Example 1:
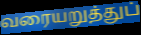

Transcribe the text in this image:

வரையறுத்துப்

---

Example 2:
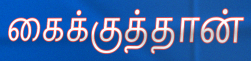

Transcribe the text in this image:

கைக்குத்தான்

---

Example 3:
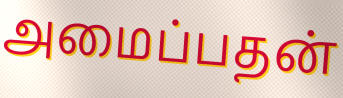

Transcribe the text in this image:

அமைப்பதன்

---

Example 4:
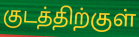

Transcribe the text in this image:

குடத்திற்குள்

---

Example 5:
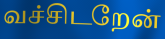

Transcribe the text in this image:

வச்சிடறேன்